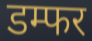
डम्फर